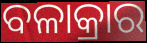
ବଳାକ୍ରାର